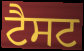
ਟੈਸਟ